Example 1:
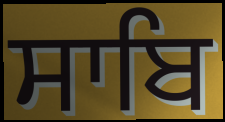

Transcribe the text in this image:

ਸਾਬਿ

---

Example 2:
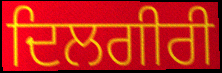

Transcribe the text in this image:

ਦਿਲਗੀਰੀ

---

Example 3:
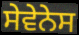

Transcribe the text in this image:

ਸੇਵੇਨੇਸ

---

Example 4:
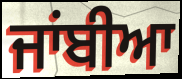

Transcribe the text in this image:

ਜਾਂਬੀਆ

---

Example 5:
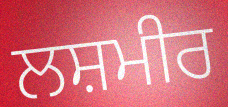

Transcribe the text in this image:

ਲਸ਼ਮੀਰ